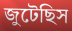
জুটেছিস